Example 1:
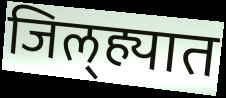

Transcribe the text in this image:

जिल्ह्यात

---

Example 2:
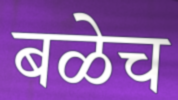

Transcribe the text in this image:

बळेच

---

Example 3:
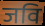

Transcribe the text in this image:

जवि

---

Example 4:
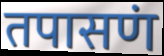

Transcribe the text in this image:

तपासणं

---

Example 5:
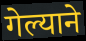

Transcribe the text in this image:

गेल्‍याने